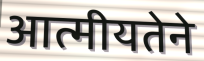
आत्मीयतेने